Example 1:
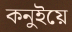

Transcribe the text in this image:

কনুইয়ে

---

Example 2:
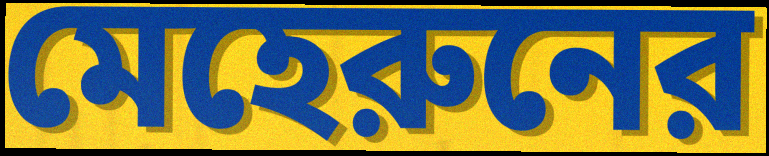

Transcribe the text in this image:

মেহেরুনের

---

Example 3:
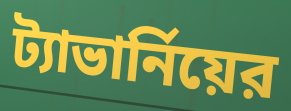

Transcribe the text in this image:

ট্যাভার্নিয়ের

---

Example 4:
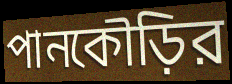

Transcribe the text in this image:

পানকৌড়ির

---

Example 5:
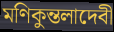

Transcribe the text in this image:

মণিকুন্তলাদেবী